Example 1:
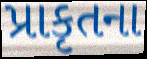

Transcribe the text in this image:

પ્રાકૃતના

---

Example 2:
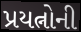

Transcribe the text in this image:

પ્રયત્નોની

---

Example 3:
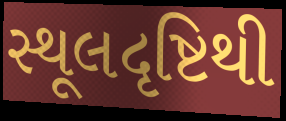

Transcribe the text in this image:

સ્થૂલદૃષ્ટિથી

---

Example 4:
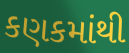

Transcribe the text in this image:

કણકમાંથી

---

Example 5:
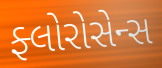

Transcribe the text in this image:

ફ્લોરોસેન્સ